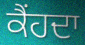
ਕੈਂਹਦਾ